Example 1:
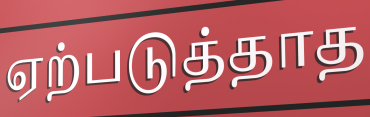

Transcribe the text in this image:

ஏற்படுத்தாத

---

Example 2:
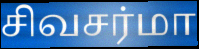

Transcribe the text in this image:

சிவசர்மா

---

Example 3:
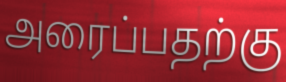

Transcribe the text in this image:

அரைப்பதற்கு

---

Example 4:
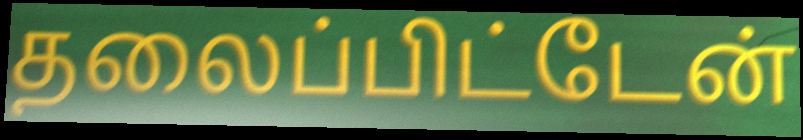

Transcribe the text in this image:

தலைப்பிட்டேன்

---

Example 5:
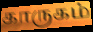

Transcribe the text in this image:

காருகம்